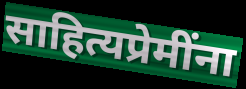
साहित्यप्रेमींना